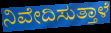
ನಿವೇದಿಸುತ್ತಾಳೆ